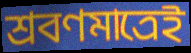
শ্রবণমাত্রেই